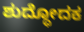
ಶುದ್ಧೋದಕ